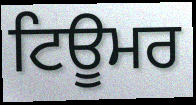
ਟਿਊਮਰ